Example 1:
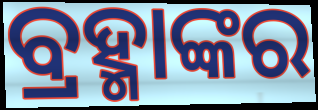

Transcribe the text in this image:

ବ୍ରହ୍ମାଙ୍କର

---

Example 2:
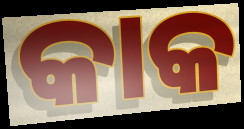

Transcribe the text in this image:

କାକ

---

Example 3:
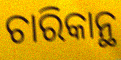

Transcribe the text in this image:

ଚାରିକାନ୍ଥ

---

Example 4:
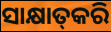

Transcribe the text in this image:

ସାକ୍ଷାତ୍‌କରି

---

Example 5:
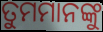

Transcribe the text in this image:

ତୁମମାନଙ୍କୁ